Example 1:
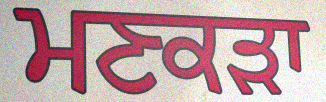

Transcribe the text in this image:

ਮਣਕੜਾ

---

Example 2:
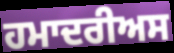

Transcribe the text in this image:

ਹਮਾਦਰੀਅਸ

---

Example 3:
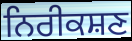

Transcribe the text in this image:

ਨਿਰੀਕਸ਼ਣ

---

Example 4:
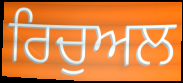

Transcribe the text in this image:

ਰਿਚੁਅਲ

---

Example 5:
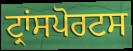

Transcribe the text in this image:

ਟ੍ਰਾਂਸਪੋਰਟਸ